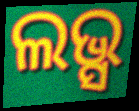
ଲଭ୍ସ